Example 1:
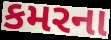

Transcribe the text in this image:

કમરના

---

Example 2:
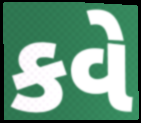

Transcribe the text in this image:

કવે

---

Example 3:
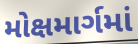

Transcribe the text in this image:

મોક્ષમાર્ગમાં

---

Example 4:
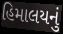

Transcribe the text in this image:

હિમાલયનું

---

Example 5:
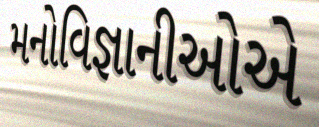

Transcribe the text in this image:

મનોવિજ્ઞાનીઓએ